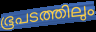
ഭൂപടത്തിലും